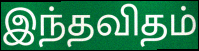
இந்தவிதம்